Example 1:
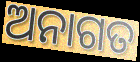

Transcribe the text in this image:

ଅନାଗତ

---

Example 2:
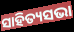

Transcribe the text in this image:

ସାହିତ୍ୟସଭା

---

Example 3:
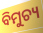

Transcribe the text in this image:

ବିମୁଚ୍ୟ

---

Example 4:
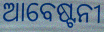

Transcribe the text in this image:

ଆବେଷ୍ଟନୀ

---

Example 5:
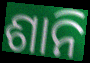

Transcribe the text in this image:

ଶାନି